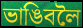
ভাঙিবলৈ